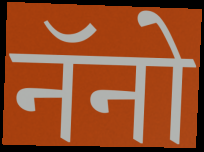
नॅनो